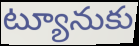
ట్యూనుకు